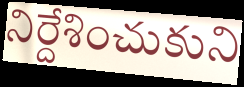
నిర్దేశించుకుని